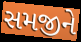
સમજીને